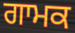
ਗਾਮਕ